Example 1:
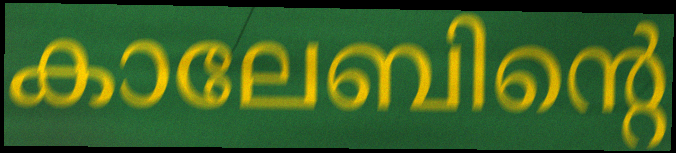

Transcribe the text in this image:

കാലേബിന്റെ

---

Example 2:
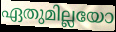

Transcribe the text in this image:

ഏതുമില്ലയോ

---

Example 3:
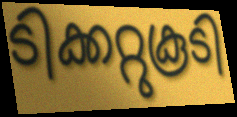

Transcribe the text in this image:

ടിക്കറ്റുകൂടി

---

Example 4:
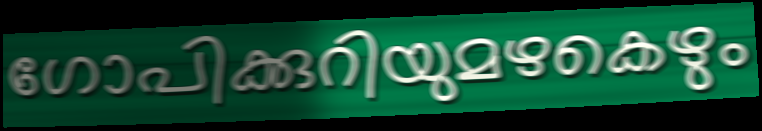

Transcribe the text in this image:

ഗോപിക്കുറിയുമഴകെഴും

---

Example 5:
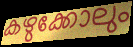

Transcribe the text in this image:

കഴുക്കോലും